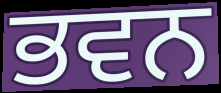
ਭਵਨ